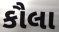
કૌલા